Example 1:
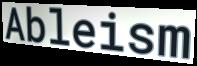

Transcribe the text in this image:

Ableism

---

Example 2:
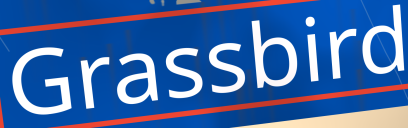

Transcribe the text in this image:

Grassbird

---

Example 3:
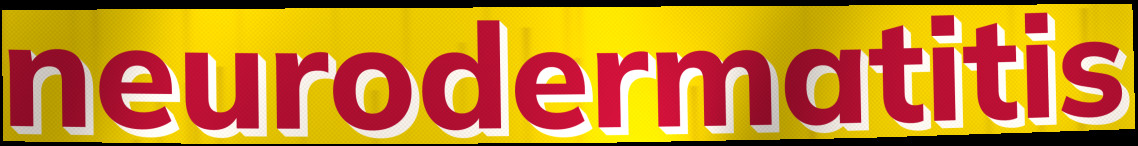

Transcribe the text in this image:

neurodermatitis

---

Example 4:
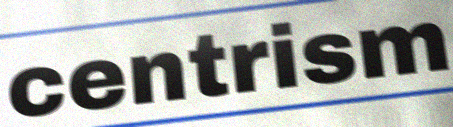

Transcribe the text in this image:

centrism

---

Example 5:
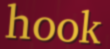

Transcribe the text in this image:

hook